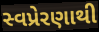
સ્વપ્રેરણાથી